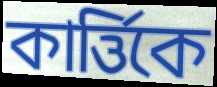
কার্ত্তিকে